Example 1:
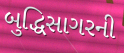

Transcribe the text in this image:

બુદ્ધિસાગરની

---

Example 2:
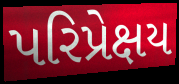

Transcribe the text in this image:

પરિપ્રેક્ષય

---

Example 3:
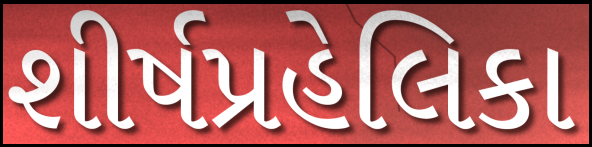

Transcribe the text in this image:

શીર્ષપ્રહેલિકા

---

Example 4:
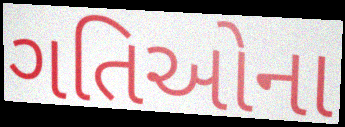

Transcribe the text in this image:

ગતિઓના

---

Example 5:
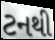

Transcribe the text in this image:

ટનથી